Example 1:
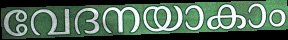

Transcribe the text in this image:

വേദനയാകാം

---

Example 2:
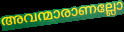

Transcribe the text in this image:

അവന്മാരാണല്ലോ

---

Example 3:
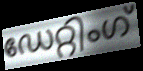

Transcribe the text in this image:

ഡേറ്റിംഗ്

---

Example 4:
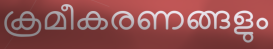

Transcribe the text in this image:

ക്രമീകരണങ്ങളും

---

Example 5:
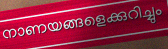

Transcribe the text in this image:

നാണയങ്ങളെക്കുറിച്ചും